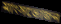
মাংসভোজন